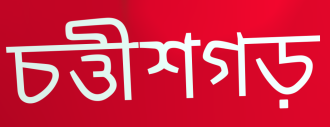
চত্তীশগড়